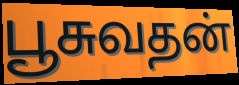
பூசுவதன்